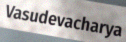
Vasudevacharya